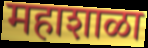
महाशाळा